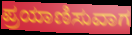
ಪ್ರಯಾಣಿಸುವಾಗ